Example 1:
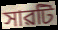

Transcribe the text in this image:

সাৱটি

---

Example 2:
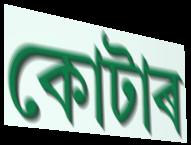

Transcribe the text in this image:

কোটাৰ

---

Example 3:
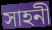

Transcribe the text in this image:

সাহনী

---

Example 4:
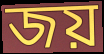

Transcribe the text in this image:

জয়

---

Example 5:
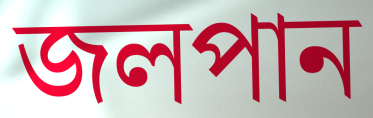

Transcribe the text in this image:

জলপান